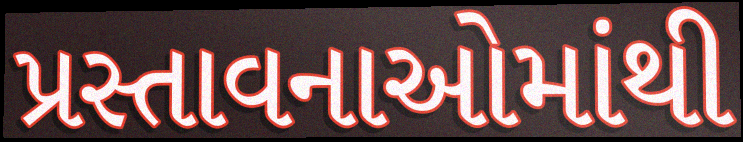
પ્રસ્તાવનાઓમાંથી